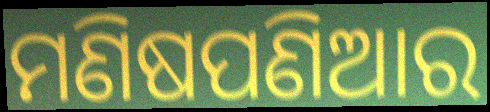
ମଣିଷପଣିଆର